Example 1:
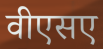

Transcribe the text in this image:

वीएसए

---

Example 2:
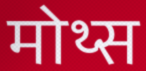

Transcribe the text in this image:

मोथ्स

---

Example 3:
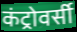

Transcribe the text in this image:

कंट्रोवर्सी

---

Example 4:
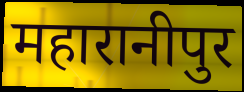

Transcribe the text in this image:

महारानीपुर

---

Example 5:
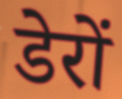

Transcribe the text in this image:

डेरों